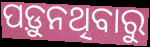
ପଡ଼ୁନଥିବାରୁ